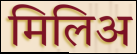
मिलिअ